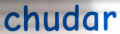
chudar